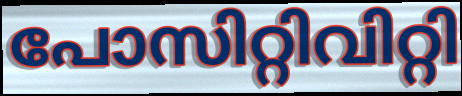
പോസിറ്റിവിറ്റി